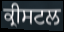
ਕ੍ਰੀਸਟਲ